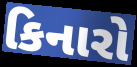
કિનારો